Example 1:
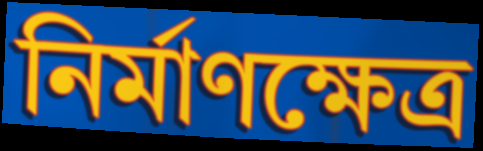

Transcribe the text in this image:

নির্মাণক্ষেত্র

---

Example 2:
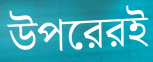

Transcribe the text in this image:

উপরেরই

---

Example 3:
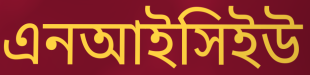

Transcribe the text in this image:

এনআইসিইউ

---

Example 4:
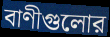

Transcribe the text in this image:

বাণীগুলোর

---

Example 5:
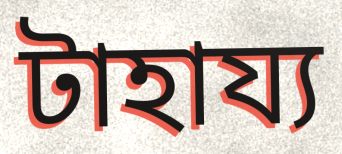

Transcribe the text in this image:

টাহায্য